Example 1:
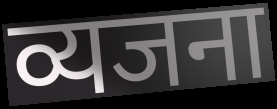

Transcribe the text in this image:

व्यजना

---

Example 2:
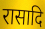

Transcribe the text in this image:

रासादि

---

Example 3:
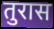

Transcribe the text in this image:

तुरास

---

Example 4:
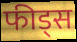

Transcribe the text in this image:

फीड्स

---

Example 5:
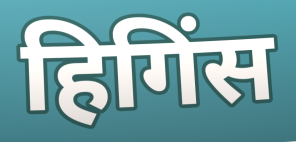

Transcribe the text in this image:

हिगिंस